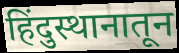
हिंदुस्थानातून